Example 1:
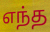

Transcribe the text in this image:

எந்த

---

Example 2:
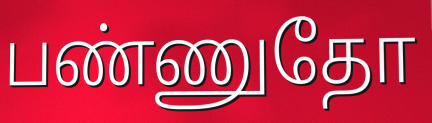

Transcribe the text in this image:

பண்ணுதோ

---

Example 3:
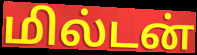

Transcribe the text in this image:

மில்டன்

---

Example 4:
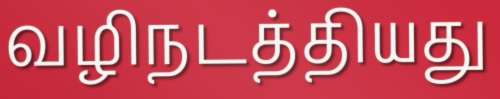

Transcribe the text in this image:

வழிநடத்தியது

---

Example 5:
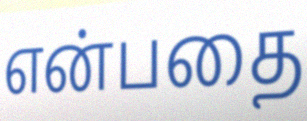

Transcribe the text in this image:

என்பதை